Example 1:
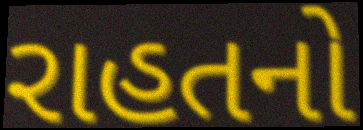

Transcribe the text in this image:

રાહતનો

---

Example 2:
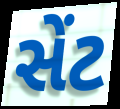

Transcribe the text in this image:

સેંટ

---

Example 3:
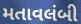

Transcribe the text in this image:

મતાવલંબી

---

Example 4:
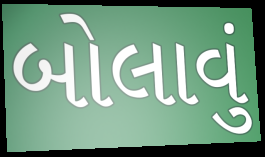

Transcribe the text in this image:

બોલાવું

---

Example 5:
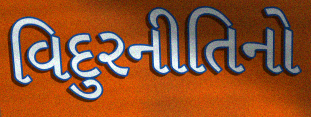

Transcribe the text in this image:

વિદુરનીતિનો